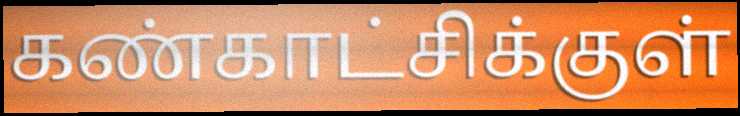
கண்காட்சிக்குள்